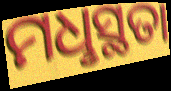
ମଧୢସ୍ଥତା